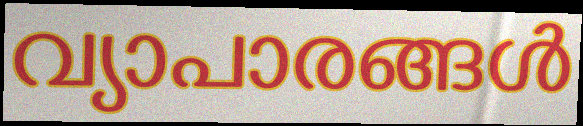
വ്യാപാരങ്ങൾ